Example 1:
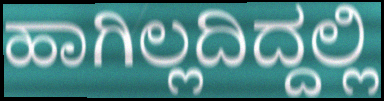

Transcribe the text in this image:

ಹಾಗಿಲ್ಲದಿದ್ದಲ್ಲಿ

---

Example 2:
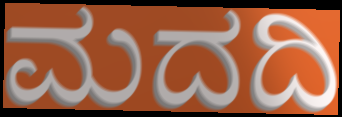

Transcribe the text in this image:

ಮದದಿ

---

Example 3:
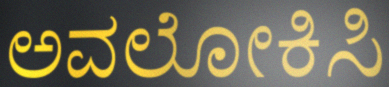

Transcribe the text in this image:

ಅವಲೋಕಿಸಿ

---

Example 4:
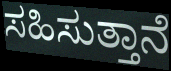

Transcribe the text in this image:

ಸಹಿಸುತ್ತಾನೆ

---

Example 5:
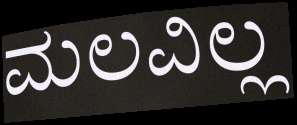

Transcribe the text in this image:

ಮಲವಿಲ್ಲ